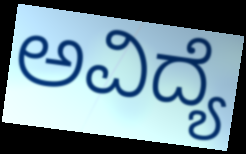
ಅವಿದ್ಯೆ